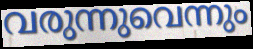
വരുന്നുവെന്നും